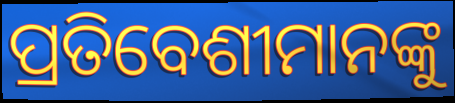
ପ୍ରତିବେଶୀମାନଙ୍କୁ